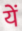
यें